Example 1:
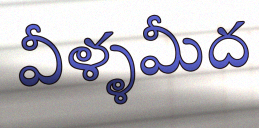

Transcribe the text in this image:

వీళ్ళమీద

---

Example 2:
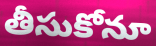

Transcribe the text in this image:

తీసుకోనూ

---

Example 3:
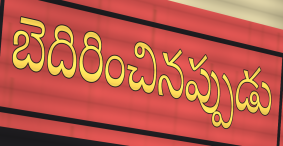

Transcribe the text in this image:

బెదిరించినప్పుడు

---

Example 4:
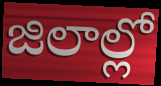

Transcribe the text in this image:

జిలాల్లో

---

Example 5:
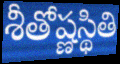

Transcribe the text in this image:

శీతోష్ణస్థితి